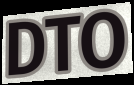
DTO